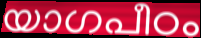
യാഗപീഠം